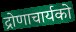
द्रोणाचार्यको